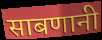
साबणानी